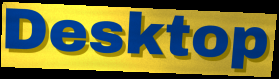
Desktop